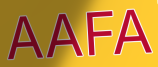
AAFA